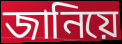
জানিয়ে